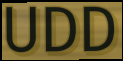
UDD